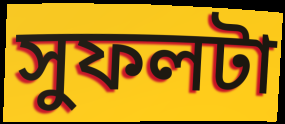
সুফলটা